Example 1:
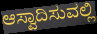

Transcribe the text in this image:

ಆಸ್ವಾದಿಸುವಲ್ಲಿ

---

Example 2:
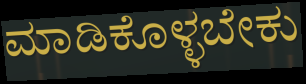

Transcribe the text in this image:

ಮಾಡಿಕೊಳ್ಳಬೇಕು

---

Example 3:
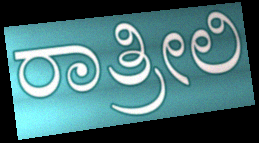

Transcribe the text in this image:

ರಾತ್ರೀಲಿ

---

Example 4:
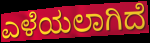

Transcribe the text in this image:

ಎಳೆಯಲಾಗಿದೆ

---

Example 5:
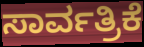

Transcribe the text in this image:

ಸಾರ್ವತ್ರಿಕೆ